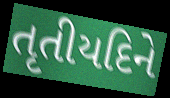
તૃતીયદિને